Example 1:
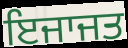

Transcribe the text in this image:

ਇਜਾਜਤ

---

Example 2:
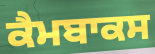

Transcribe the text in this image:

ਕੈਮਬਾਕਸ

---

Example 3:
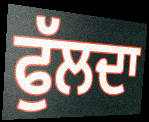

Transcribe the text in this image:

ਫੁੱਲਦਾ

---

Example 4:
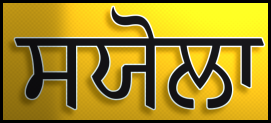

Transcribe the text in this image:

ਸਯੋਲਾ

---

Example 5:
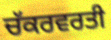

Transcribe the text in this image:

ਚੱਕਰਵਰਤੀ